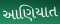
આણિયાત